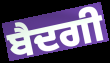
ਬੈਦਗੀ